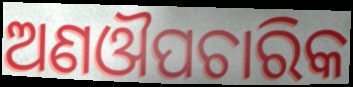
ଅଣଔପଚାରିକ